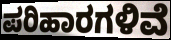
ಪರಿಹಾರಗಳಿವೆ